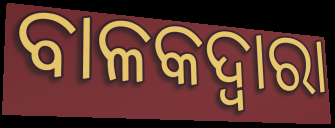
ବାଳକଦ୍ୱାରା